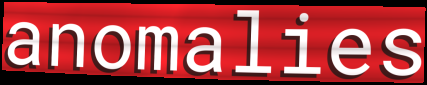
anomalies